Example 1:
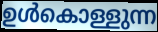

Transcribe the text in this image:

ഉൾകൊള്ളുന്ന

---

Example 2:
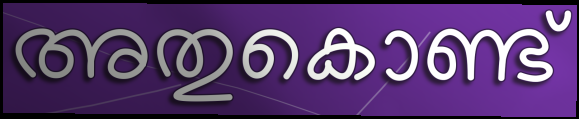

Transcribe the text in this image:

അതുകൊണ്ട്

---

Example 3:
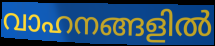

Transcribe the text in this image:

വാഹനങ്ങളിൽ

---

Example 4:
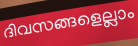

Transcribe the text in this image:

ദിവസങ്ങളെല്ലാം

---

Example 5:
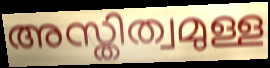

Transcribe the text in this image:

അസ്തിത്വമുള്ള